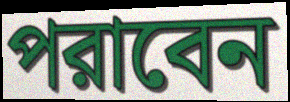
পরাবেন